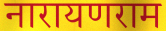
नारायणराम